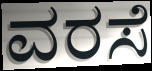
ವರಸೆ